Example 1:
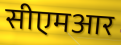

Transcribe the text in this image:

सीएमआर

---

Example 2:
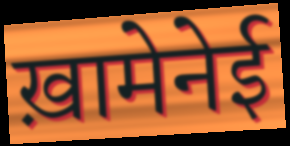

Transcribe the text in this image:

ख़ामेनेई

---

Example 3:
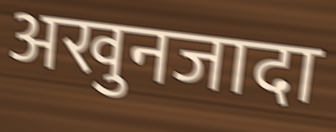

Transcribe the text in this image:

अखुनजादा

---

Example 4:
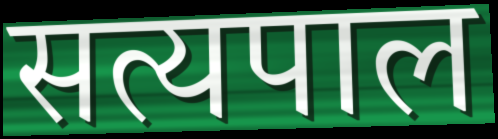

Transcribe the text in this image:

सत्यपाल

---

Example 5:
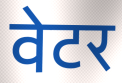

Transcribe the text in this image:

वेटर